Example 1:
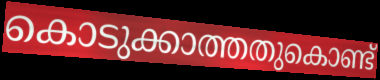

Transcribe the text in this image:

കൊടുക്കാത്തതുകൊണ്ട്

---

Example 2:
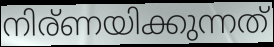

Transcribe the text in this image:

നിര്ണയിക്കുന്നത്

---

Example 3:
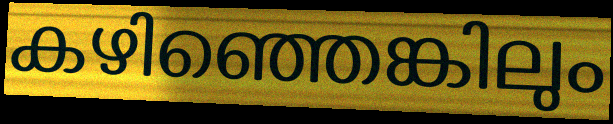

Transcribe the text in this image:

കഴിഞ്ഞെങ്കിലും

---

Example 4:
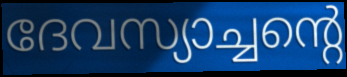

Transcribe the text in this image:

ദേവസ്യാച്ചന്റെ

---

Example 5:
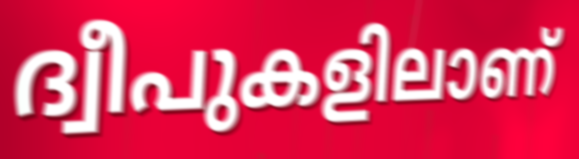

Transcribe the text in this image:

ദ്വീപുകളിലാണ്